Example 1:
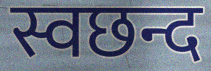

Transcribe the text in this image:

स्वछन्द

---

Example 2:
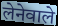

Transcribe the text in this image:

लेनेवाले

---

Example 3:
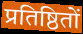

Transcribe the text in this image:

प्रतिष्ठितों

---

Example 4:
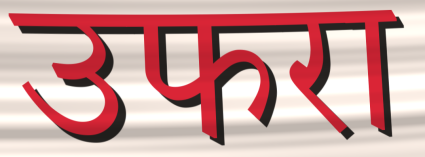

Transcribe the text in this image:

उफरा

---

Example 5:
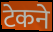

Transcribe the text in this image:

टेकने